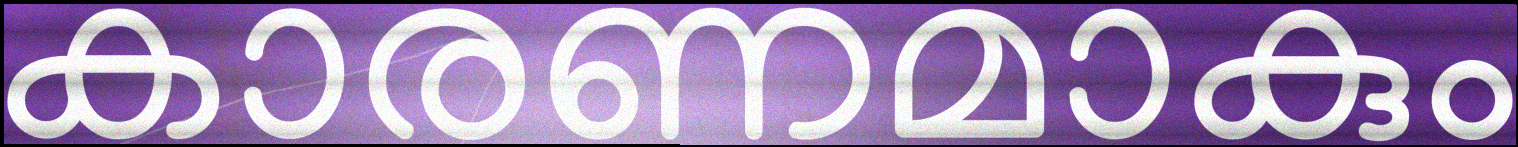
കാരണമാകും